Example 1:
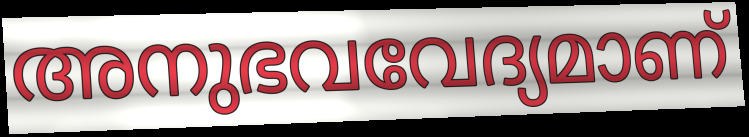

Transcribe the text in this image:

അനുഭവവേദ്യമാണ്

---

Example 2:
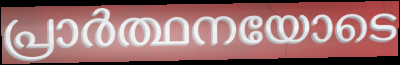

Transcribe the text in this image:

പ്രാർത്ഥനയോടെ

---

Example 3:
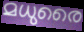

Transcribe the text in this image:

മധുരൈ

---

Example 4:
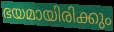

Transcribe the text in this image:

ഭയമായിരിക്കും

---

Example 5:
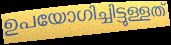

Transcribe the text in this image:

ഉപയോഗിച്ചിട്ടുള്ളത്